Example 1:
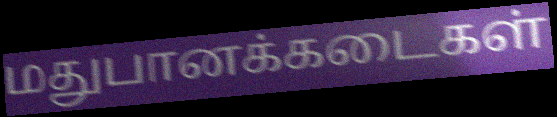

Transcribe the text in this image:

மதுபானக்கடைகள்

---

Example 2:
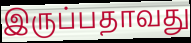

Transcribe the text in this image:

இருப்பதாவது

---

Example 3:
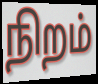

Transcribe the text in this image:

நிறம்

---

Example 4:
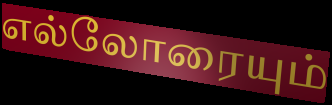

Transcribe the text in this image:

எல்லோரையும்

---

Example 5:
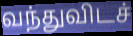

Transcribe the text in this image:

வந்துவிடச்